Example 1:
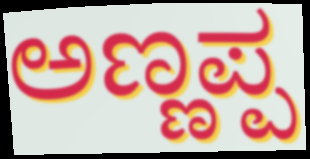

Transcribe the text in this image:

ಅಣ್ಣಪ್ಪ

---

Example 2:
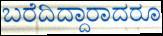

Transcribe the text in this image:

ಬರೆದಿದ್ದಾರಾದರೂ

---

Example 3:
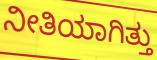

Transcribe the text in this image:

ನೀತಿಯಾಗಿತ್ತು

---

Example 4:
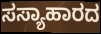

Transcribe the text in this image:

ಸಸ್ಯಾಹಾರದ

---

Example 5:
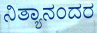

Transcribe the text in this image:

ನಿತ್ಯಾನಂದರ